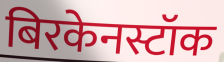
बिरकेनस्टॉक